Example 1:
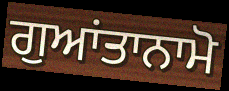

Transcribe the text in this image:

ਗੁਆਂਤਾਨਾਮੋ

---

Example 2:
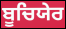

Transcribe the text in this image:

ਬੂਚਿਯੇਰ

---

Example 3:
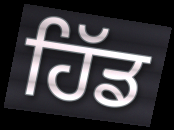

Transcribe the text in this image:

ਹਿੱਡ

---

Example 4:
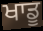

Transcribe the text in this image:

ਖਾਡੂ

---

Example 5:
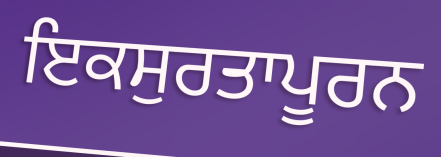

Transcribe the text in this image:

ਇਕਸੁਰਤਾਪੂਰਨ